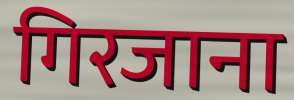
गिरजाना